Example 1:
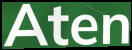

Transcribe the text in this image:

Aten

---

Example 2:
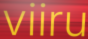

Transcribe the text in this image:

viiru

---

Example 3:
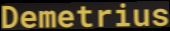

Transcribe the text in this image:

Demetrius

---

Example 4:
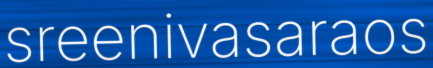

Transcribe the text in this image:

sreenivasaraos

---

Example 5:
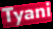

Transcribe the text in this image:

Tyani